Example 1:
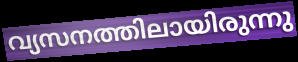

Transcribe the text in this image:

വ്യസനത്തിലായിരുന്നു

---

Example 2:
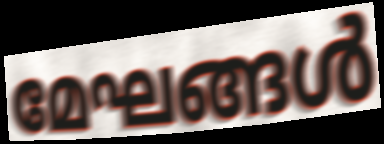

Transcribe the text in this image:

മേഘങ്ങൾ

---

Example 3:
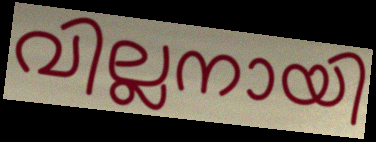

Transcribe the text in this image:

വില്ലനായി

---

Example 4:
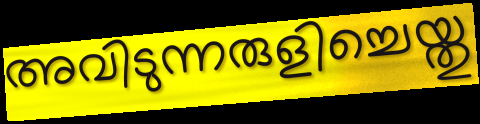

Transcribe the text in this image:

അവിടുന്നരുളിച്ചെയ്തു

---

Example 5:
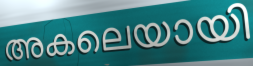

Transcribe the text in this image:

അകലെയായി